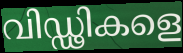
വിഡ്ഢികളെ